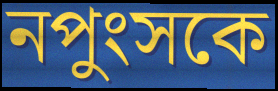
নপুংসকে